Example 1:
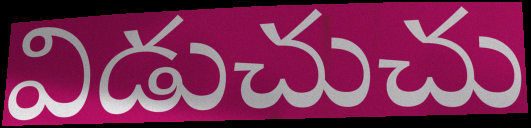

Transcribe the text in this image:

విడుచుచు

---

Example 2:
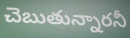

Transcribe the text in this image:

చెబుతున్నారనీ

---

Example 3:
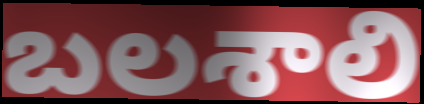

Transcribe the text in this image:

బలశాలి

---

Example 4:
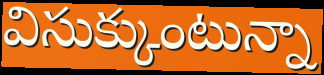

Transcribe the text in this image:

విసుక్కుంటున్నా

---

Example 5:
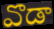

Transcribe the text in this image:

వొడా